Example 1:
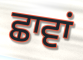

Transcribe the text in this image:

ਛਾਵਾਂ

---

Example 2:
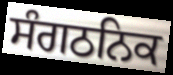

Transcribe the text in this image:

ਸੰਗਠਨਿਕ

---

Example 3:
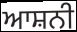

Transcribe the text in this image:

ਆਸ਼ਨੀ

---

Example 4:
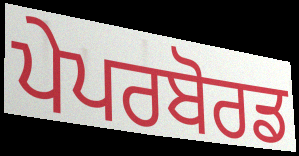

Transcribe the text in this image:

ਪੇਪਰਬੋਰਡ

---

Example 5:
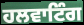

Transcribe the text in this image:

ਹਲਵਾਟਿੰਗ